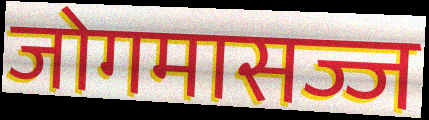
जोगमासज्ज